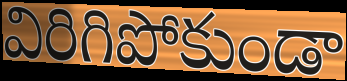
విరిగిపోకుండా